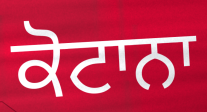
ਕੋਟਾਨਾ